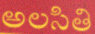
అలసితి